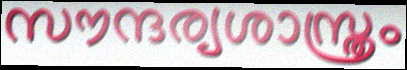
സൗന്ദര്യശാസ്ത്രം